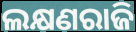
ଲକ୍ଷଣରାଜି